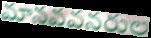
మానవవనరుల